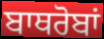
ਬਾਥਰੋਬਾਂ